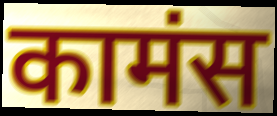
कामंस